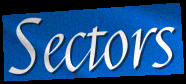
Sectors